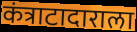
कंत्राटादाराला